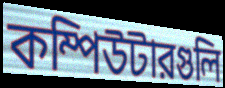
কম্পিউটারগুলি